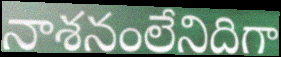
నాశనంలేనిదిగా